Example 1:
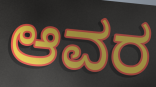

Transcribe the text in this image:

ಆವರ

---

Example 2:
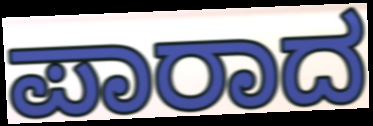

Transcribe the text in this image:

ಪಾರಾದ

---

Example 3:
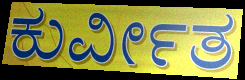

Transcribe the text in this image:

ಕುರ್ವೀತ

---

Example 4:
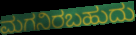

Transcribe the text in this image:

ಮಗನಿರಬಹುದು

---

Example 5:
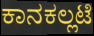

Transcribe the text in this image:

ಕಾನಕಲ್ಲಟೆ